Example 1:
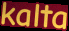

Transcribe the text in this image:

kalta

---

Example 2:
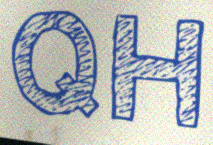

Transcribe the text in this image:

QH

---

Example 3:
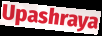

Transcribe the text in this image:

Upashraya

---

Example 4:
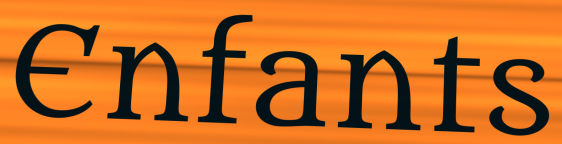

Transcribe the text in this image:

Enfants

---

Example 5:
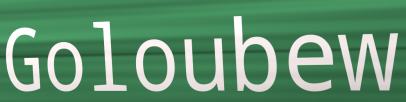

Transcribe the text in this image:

Goloubew